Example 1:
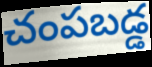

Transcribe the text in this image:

చంపబడ్డ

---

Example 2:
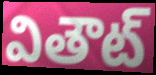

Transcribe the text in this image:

వితౌట్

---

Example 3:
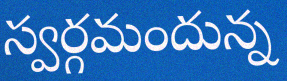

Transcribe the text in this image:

స్వర్గమందున్న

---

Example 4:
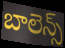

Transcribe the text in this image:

బాలెన్స్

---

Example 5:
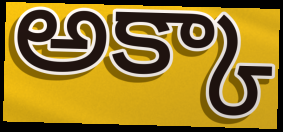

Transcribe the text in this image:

అక్కా